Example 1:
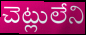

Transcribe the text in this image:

చెట్లులేని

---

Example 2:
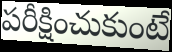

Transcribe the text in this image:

పరీక్షించుకుంటే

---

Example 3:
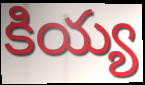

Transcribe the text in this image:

కియ్య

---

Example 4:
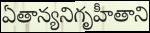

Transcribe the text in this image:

ఏతాన్యనిగృహీతాని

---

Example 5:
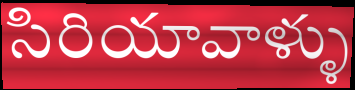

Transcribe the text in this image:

సిరియావాళ్ళు